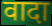
वादा